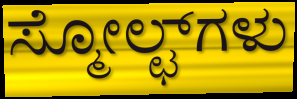
ಸ್ಮೋಲ್ಟ್‌ಗಳು